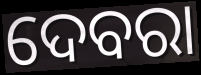
ଦେବରା